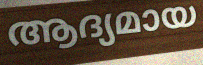
ആദ്യമായ